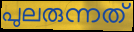
പുലരുന്നത്